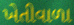
ખેતીવાળા